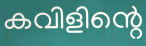
കവിളിന്റെ